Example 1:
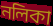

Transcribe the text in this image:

নলিকা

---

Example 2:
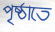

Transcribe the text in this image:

পৃষ্ঠাতে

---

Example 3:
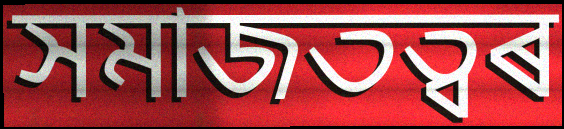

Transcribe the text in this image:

সমাজতত্বৰ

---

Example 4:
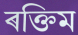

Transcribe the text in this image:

ৰক্তিম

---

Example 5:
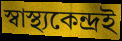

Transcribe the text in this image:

স্বাস্থ্যকেন্দ্ৰই